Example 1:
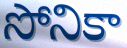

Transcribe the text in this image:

సోనికా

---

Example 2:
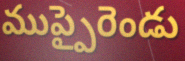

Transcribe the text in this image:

ముప్పైరెండు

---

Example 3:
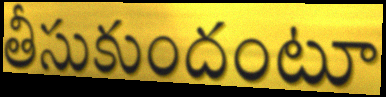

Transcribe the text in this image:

తీసుకుందంటూ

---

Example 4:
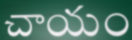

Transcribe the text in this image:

చాయం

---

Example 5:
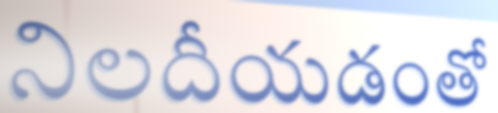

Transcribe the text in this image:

నిలదీయడంతో